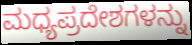
ಮಧ್ಯಪ್ರದೇಶಗಳನ್ನು